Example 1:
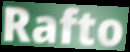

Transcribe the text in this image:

Rafto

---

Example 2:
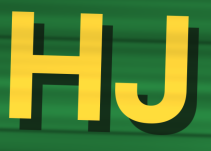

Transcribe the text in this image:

HJ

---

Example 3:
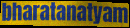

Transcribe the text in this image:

bharatanatyam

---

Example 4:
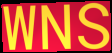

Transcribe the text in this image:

WNS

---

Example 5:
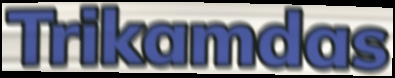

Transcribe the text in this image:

Trikamdas